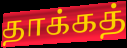
தாக்கத்